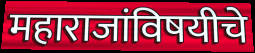
महाराजांविषयीचे